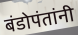
बंडोपंतांनी